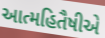
આત્મહિતૈષીએ